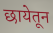
छायेतून